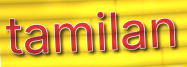
tamilan